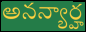
అనన్యార్హ